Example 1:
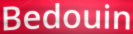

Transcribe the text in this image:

Bedouin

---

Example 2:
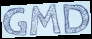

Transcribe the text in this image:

GMD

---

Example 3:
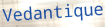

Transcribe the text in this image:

Vedantique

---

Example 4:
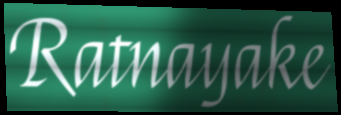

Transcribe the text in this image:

Ratnayake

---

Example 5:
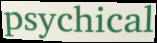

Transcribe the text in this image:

psychical